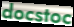
docstoc